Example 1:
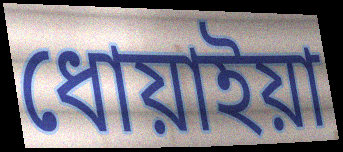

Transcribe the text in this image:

ধোয়াইয়া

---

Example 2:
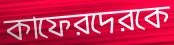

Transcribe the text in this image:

কাফেরদেরকে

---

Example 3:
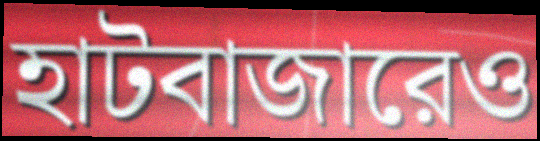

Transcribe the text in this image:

হাটবাজারেও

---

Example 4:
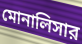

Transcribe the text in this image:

মোনালিসার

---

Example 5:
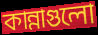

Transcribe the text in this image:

কান্নাগুলো